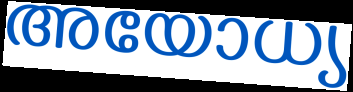
അയോധ്യ